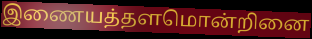
இணையத்தளமொன்றினை